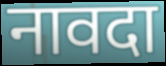
नावदा